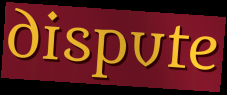
dispute